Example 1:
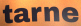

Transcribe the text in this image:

tarne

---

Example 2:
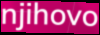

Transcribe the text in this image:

njihovo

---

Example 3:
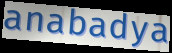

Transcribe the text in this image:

anabadya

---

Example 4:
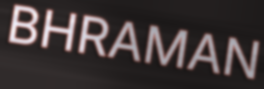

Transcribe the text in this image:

BHRAMAN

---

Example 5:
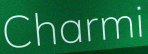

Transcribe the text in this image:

Charmi